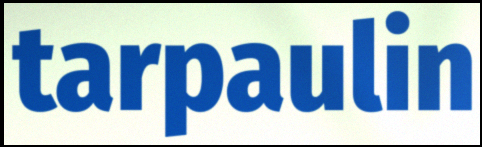
tarpaulin